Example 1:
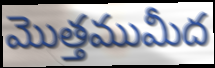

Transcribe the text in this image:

మొత్తముమీద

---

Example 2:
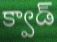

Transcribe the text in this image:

క్వాడ్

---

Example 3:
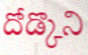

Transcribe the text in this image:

దోడ్కొని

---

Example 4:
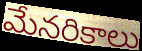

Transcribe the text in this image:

మేనరికాలు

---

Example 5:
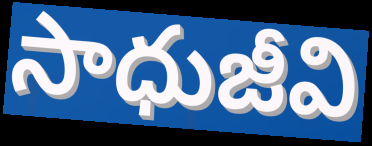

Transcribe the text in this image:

సాధుజీవి